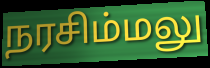
நரசிம்மலு